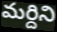
మర్దిని